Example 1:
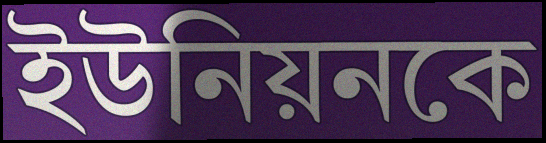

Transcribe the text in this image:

ইউনিয়নকে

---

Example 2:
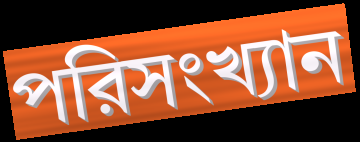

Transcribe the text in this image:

পরিসংখ্য়ান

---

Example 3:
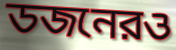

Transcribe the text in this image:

ডজনেরও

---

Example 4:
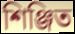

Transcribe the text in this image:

শিঞ্জিত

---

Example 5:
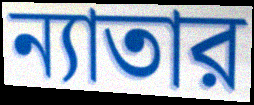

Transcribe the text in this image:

ন্যাতার